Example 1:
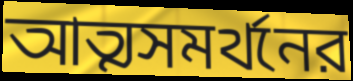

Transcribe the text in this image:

আত্মসমর্থনের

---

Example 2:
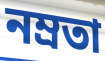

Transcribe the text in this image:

নম্রতা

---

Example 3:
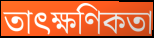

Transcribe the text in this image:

তাৎক্ষণিকতা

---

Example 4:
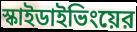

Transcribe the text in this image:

স্কাইডাইভিংয়ের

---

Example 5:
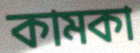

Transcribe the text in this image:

কামকা